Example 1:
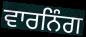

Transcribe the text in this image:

ਵਾਰਨਿੰਗ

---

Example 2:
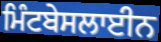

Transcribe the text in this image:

ਮਿੰਟਬੇਸਲਾਈਨ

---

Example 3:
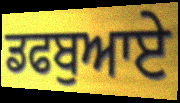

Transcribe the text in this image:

ਡਫਬੁਆਏ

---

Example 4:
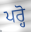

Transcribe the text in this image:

ਪਰ੍ਹੋ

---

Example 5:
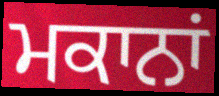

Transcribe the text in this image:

ਮਕਾਨਾਂ